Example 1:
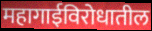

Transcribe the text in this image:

महागाईविरोधातील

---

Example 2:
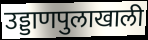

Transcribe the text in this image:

उड्डाणपुलाखाली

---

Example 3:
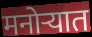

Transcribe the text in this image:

मनोऱ्यात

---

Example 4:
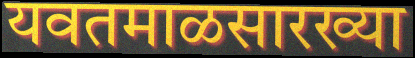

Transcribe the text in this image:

यवतमाळसारख्या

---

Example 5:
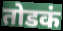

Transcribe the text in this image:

तोडकं